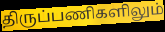
திருப்பணிகளிலும்